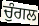
ਚੁੰਗਲ